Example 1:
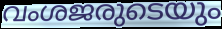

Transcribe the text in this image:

വംശജരുടെയും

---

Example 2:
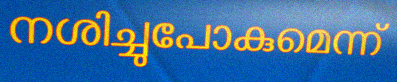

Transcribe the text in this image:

നശിച്ചുപോകുമെന്ന്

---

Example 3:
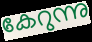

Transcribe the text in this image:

കേറുന്നു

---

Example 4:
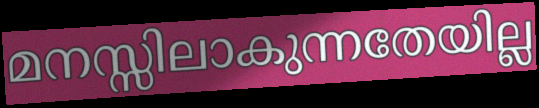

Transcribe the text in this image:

മനസ്സിലാകുന്നതേയില്ല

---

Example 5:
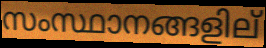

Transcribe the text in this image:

സംസ്ഥാനങ്ങളില്